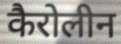
कैरोलीन